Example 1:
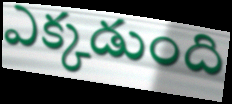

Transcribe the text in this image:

ఎక్కడుంది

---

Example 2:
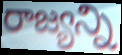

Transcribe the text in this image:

రాజ్యన్ని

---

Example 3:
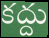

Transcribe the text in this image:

కద్దు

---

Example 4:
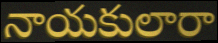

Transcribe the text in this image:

నాయకులారా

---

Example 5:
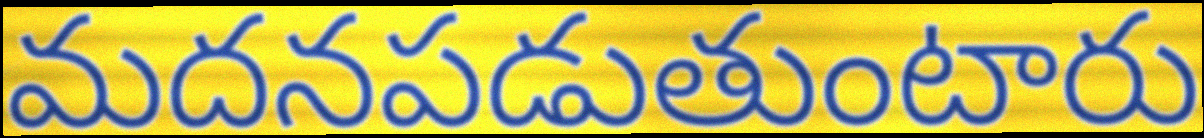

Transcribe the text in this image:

మదనపడుతుంటారు